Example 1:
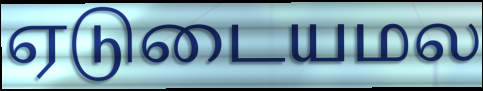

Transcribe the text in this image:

ஏடுடையமல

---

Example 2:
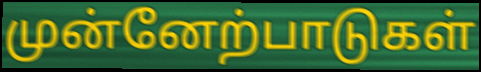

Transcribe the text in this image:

முன்னேற்பாடுகள்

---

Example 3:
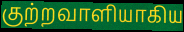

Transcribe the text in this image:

குற்றவாளியாகிய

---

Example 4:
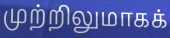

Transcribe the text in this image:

முற்றிலுமாகக்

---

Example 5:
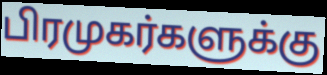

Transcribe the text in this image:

பிரமுகர்களுக்கு